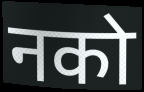
नको